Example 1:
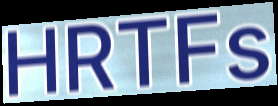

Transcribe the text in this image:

HRTFs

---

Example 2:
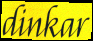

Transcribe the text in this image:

dinkar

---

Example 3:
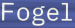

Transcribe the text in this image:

Fogel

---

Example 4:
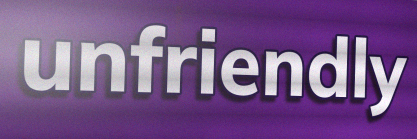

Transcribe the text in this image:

unfriendly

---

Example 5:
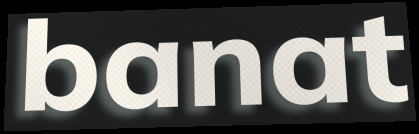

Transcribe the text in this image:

banat